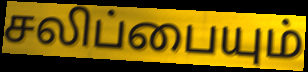
சலிப்பையும்